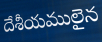
దేశీయములైన